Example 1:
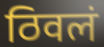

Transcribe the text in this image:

ठिवलं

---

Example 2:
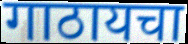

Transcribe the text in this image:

गाठायचा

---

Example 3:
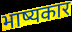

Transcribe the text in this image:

भाष्यकार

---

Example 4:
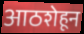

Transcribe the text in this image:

आठशेहून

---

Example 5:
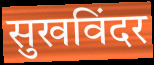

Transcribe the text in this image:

सुखविंदर